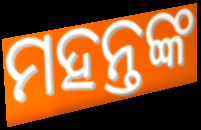
ମହନ୍ତଙ୍କ